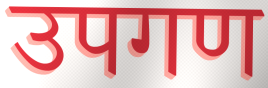
उपगण